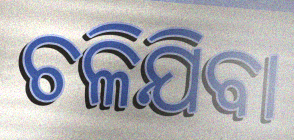
ଚଳିଯିବା